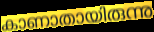
കാണാതായിരുന്നു